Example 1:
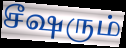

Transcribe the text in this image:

சீஷரும்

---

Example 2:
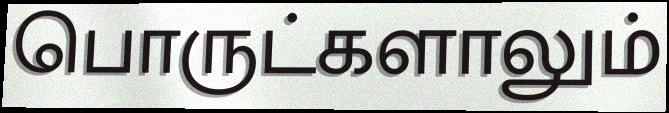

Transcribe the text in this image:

பொருட்களாலும்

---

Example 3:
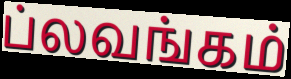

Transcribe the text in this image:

ப்லவங்கம்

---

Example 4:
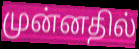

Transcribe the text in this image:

முன்னதில்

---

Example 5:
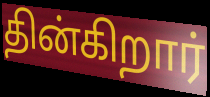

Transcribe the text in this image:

தின்கிறார்